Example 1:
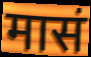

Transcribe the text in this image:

मासं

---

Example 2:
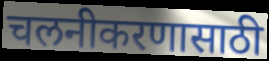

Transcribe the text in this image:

चलनीकरणासाठी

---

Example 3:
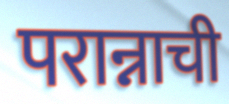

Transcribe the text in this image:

परान्नाची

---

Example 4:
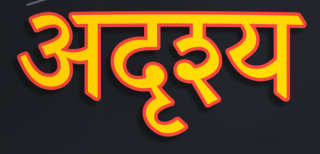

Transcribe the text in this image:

अदृश्य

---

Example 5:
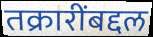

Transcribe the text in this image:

तक्रारींबद्दल